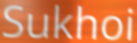
Sukhoi